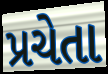
પ્રચેતા